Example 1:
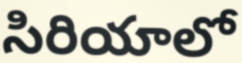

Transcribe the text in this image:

సిరియాలో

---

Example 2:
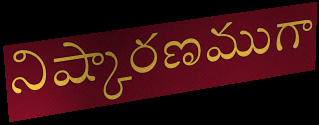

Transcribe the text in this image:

నిష్కారణముగా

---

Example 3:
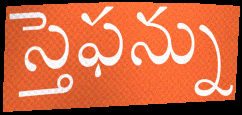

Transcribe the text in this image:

స్తెఫన్ను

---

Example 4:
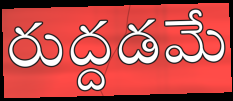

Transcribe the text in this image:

రుద్దడమే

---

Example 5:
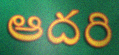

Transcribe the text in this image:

ఆదరి